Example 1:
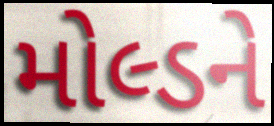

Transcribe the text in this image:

મોલ્ડને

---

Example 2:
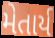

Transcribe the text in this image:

મેતાર્ય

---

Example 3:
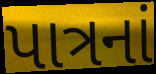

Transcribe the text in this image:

પાત્રનાં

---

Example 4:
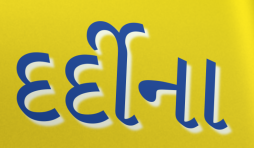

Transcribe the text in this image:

દર્દીના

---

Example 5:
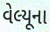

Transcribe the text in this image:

વેલ્યૂના